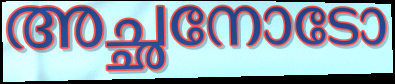
അച്ഛനോടോ